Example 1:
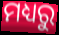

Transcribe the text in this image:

ମଧ୍ୟରୁ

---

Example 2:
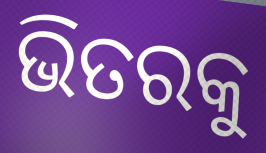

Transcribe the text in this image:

ଭିତରକୁ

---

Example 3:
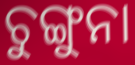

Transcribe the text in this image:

ଚୁଙ୍ଗୁନା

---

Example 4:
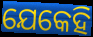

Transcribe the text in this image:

ଯେକେହି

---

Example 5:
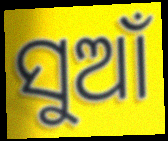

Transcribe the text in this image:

ସୁଆଁ